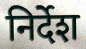
निर्देश